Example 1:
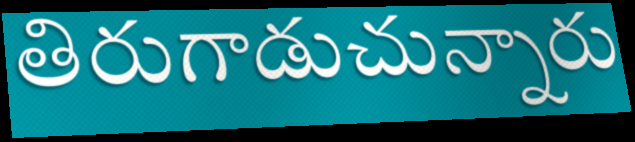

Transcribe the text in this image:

తిరుగాడుచున్నారు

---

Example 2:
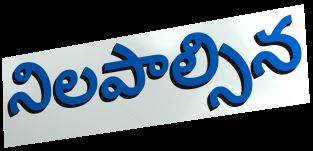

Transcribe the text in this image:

నిలపాల్సిన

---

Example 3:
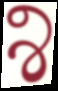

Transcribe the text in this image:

శి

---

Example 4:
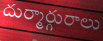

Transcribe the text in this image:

దుర్మార్గురాలు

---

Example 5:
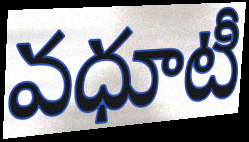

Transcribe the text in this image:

వధూటీ